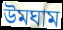
উমঘাম